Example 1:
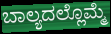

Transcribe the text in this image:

ಬಾಲ್ಯದಲ್ಲೊಮ್ಮೆ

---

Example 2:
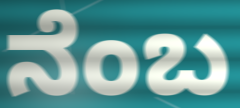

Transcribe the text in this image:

ನೆಂಬ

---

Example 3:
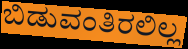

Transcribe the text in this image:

ಬಿಡುವಂತಿರಲಿಲ್ಲ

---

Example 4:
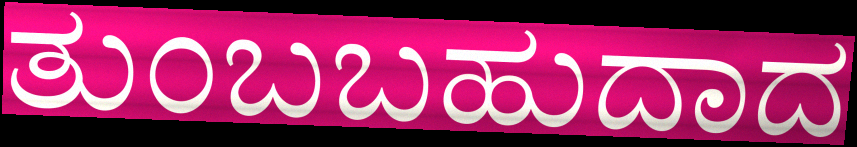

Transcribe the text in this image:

ತುಂಬಬಹುದಾದ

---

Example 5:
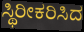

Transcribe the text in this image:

ಸ್ಥಿರೀಕರಿಸಿದ